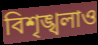
বিশৃঙ্খলাও